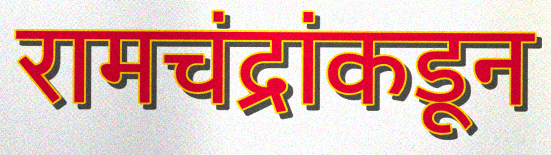
रामचंद्रांकडून